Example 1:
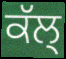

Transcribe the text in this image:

ਕੱਲ੍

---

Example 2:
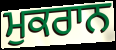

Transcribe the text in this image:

ਮੁਕਰਾਨ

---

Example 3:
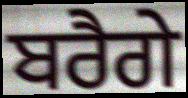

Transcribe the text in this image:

ਬਰੈਗੇ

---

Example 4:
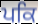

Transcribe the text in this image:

ਪਕਿ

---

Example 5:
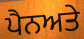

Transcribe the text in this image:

ਪੈਨਅਤੇ